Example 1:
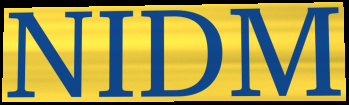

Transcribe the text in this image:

NIDM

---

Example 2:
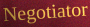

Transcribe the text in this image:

Negotiator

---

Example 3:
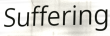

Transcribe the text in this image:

Suffering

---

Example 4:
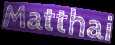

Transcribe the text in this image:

Matthai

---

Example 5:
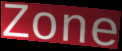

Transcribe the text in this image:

Zone